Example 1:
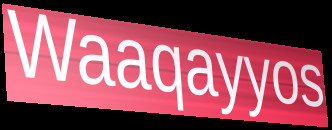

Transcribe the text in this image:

Waaqayyos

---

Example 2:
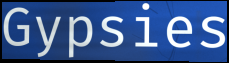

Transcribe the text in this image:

Gypsies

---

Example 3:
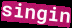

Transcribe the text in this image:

singin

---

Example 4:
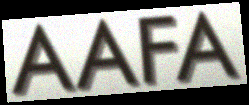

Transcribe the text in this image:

AAFA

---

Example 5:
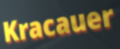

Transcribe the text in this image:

Kracauer